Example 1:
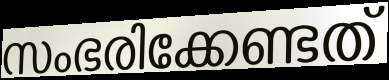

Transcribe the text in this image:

സംഭരിക്കേണ്ടത്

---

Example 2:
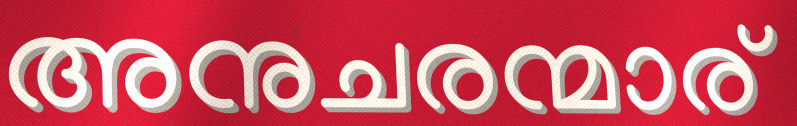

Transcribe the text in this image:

അനുചരന്മാര്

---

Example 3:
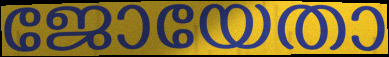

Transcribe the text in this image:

ജോയേതാ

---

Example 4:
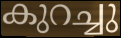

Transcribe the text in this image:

കുറച്ചു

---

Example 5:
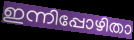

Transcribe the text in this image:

ഇന്നിപ്പോഴിതാ